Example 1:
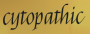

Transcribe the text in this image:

cytopathic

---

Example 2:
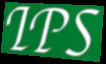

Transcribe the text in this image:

IPS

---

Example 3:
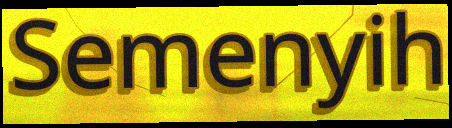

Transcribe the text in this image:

Semenyih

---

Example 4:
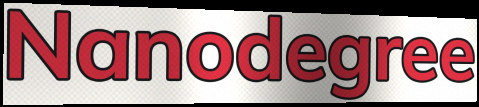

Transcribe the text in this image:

Nanodegree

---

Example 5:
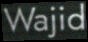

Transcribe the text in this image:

Wajid